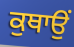
ਕੁਥਾਉਂ